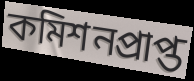
কমিশনপ্রাপ্ত